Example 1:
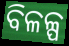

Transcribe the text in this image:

ବିଳଳ୍ପ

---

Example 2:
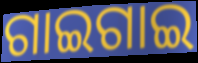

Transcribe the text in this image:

ଗାଇଗାଇ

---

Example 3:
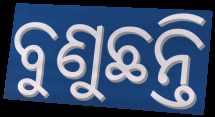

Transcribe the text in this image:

ବୁଣୁଛନ୍ତି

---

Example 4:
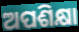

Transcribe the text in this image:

ଅପଶିକ୍ଷା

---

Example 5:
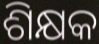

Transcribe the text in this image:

ଶିକ୍ଷକ